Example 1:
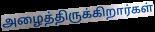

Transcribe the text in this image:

அழைத்திருக்கிறார்கள்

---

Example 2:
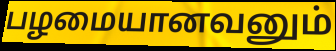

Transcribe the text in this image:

பழமையானவனும்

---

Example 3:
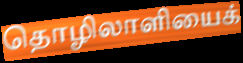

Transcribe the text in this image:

தொழிலாளியைக்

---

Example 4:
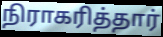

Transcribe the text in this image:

நிராகரித்தார்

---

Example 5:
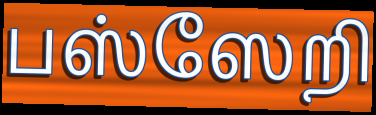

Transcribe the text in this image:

பஸ்ஸேறி